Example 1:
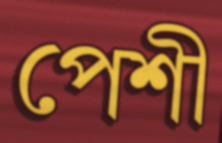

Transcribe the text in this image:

পেশী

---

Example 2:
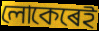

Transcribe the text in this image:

লোকেৰেই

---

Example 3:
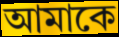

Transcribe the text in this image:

আমাকে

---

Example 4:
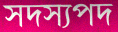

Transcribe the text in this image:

সদস্যপদ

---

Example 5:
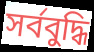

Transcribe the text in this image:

সৰ্ববুদ্ধি